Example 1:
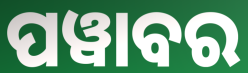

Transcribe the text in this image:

ପୱାବର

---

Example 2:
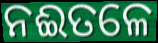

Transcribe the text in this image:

ନଈତଳେ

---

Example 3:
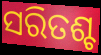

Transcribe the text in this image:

ସରିତଶ୍ଚ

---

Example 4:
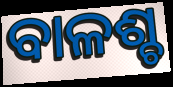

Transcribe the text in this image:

ବାଳଶ୍ଚ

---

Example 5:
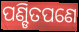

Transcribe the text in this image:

ପଣ୍ଡିତପଣେ